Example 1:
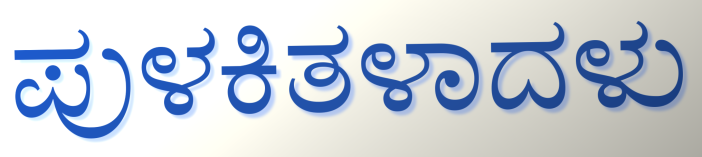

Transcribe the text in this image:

ಪುಳಕಿತಳಾದಳು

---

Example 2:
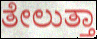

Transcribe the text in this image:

ತೇಲುತ್ತಾ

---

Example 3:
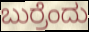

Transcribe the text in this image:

ಬುರ್ರೆಂದು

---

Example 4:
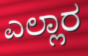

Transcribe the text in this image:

ಎಲ್ಲಾರ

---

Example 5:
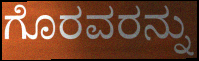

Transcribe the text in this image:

ಗೊರವರನ್ನು